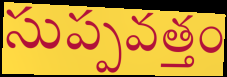
సుప్పవత్తం